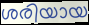
ശരിയായ